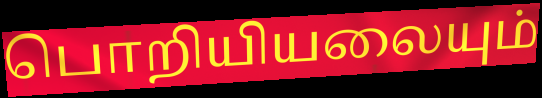
பொறியியலையும்